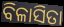
ବିଳାସିତା